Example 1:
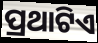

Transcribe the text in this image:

ପ୍ରଥାଟିଏ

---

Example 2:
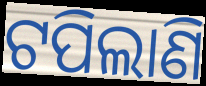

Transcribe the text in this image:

ଟପିଲାଣି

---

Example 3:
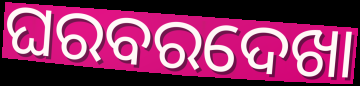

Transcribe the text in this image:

ଘରବରଦେଖା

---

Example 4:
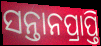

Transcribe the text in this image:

ସନ୍ତାନପ୍ରାପ୍ତି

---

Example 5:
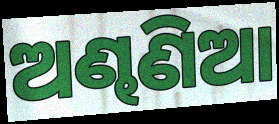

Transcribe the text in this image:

ଅଣ୍ଢଣିଆ